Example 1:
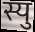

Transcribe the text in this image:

स्यु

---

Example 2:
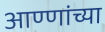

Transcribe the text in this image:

आण्णांच्या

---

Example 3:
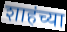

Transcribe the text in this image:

शाहंच्या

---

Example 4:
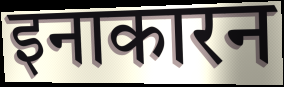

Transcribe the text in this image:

इनाकारन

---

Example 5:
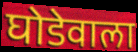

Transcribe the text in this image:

घोडेवाला